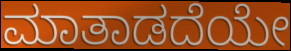
ಮಾತಾಡದೆಯೇ